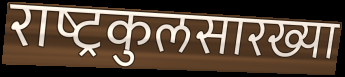
राष्ट्रकुलसारख्या